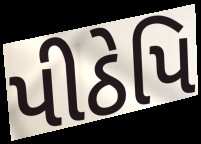
પીઠેપિ